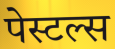
पेस्टल्स